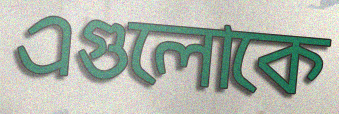
এগুলোকে